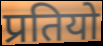
प्रतियो